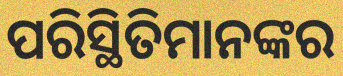
ପରିସ୍ଥିତିମାନଙ୍କର